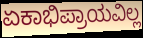
ಏಕಾಭಿಪ್ರಾಯವಿಲ್ಲ